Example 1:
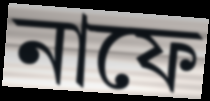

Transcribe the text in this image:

নাফে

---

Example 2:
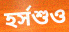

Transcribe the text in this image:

হর্সশুও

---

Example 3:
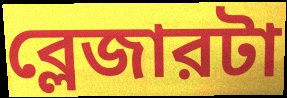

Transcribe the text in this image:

ব্লেজারটা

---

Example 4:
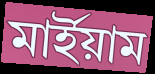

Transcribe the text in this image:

মার্ইয়াম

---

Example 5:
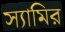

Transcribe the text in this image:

স্যামির